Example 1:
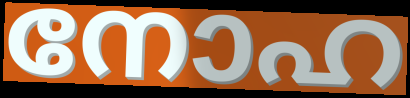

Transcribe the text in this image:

നോഹ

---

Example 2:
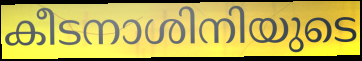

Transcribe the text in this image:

കീടനാശിനിയുടെ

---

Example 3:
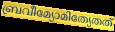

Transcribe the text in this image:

ബ്രവീമ്യോമിത്യേതത്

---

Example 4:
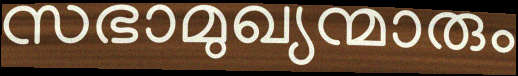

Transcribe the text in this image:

സഭാമുഖ്യന്മാരും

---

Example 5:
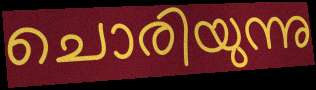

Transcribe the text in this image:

ചൊരിയുന്നു